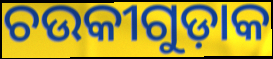
ଚଉକୀଗୁଡ଼ାକ